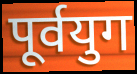
पूर्वयुग